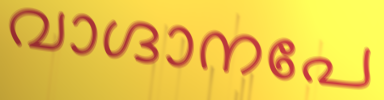
വാഗ്ദാനപേ